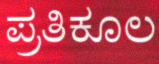
ಪ್ರತಿಕೂಲ